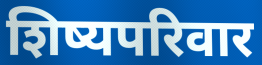
शिष्यपरिवार